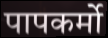
पापकर्मो